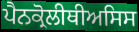
ਪੈਨਕ੍ਰੋਲੀਥੀਅਸਿਸ